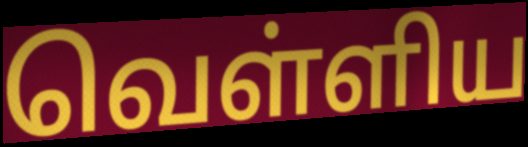
வெள்ளிய